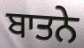
ਬਾਤਨੇ